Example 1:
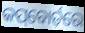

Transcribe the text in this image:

କପ୍‌ବୋର୍ଡ଼ରେ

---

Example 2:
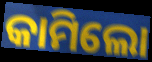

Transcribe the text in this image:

କାମିଲୋ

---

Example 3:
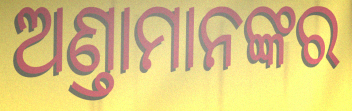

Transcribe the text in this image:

ଅଣ୍ତାମାନଙ୍କର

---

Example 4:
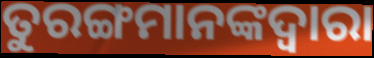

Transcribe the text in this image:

ତୁରଙ୍ଗମାନଙ୍କଦ୍ୱାରା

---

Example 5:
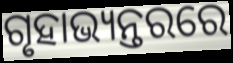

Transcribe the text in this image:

ଗୃହାଭ୍ୟନ୍ତରରେ